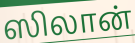
ஸிலான்